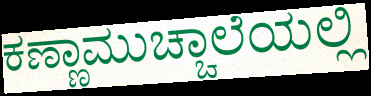
ಕಣ್ಣಾಮುಚ್ಚಾಲೆಯಲ್ಲಿ